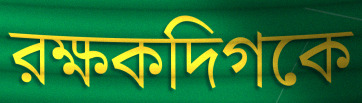
রক্ষকদিগকে